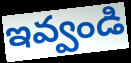
ఇవ్వండి